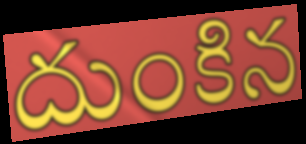
దుంకిన